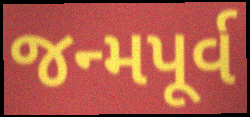
જન્મપૂર્વ